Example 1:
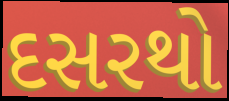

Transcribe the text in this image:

દસરથો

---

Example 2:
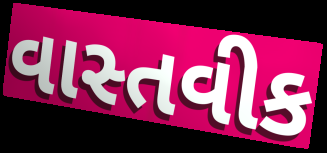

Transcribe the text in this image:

વાસ્તવીક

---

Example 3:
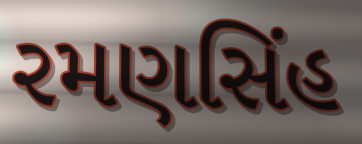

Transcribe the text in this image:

રમણસિંહ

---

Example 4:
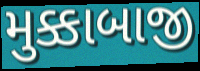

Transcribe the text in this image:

મુક્કાબાજી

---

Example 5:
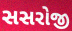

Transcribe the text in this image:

સસરોજી